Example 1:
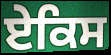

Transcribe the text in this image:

ਏਕਿਸ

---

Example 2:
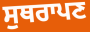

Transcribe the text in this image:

ਸੁਥਰਾਪਣ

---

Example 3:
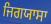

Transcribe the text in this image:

ਜਿਗਯਾਸਾ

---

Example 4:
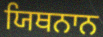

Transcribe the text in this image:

ਯਿਥਨਾਨ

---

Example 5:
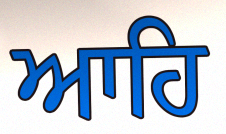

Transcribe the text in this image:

ਆਹਿ